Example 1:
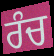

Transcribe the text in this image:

ਰੰਚ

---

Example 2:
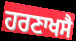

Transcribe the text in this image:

ਹਰਣਾਖਸੈ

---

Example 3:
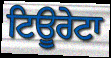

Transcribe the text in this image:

ਟਿਊਰੇਟਾ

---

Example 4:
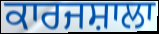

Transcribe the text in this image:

ਕਾਰਜਸ਼ਾਲਾ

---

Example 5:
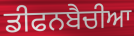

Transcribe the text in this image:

ਡੀਫਨਬੈਚੀਆ